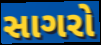
સાગરો